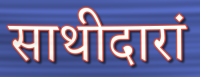
साथीदारां